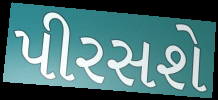
પીરસશે